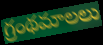
గ్రంథమాలలు